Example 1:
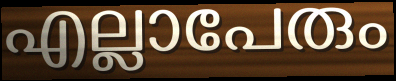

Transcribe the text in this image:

എല്ലാപേരും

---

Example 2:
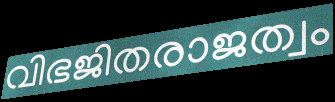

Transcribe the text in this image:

വിഭജിതരാജത്വം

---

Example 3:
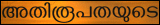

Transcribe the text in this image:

അതിരൂപതയുടെ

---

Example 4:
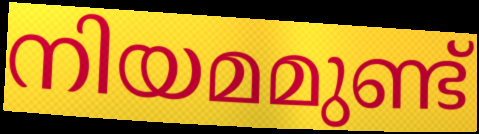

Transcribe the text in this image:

നിയമമുണ്ട്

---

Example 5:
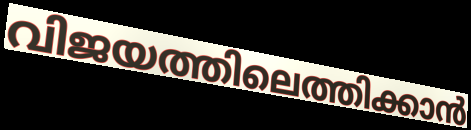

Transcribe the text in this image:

വിജയത്തിലെത്തിക്കാൻ